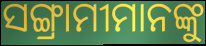
ସଙ୍ଗ୍ରାମୀମାନଙ୍କୁ